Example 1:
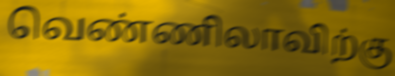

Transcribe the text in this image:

வெண்ணிலாவிற்கு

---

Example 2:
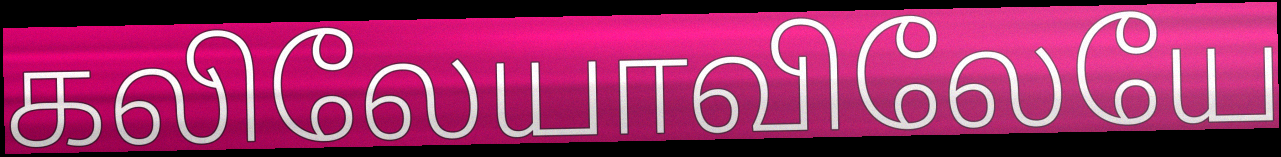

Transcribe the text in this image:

கலிலேயாவிலேயே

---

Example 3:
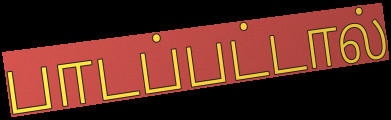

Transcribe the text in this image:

பாடப்பட்டால்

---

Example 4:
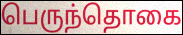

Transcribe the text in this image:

பெருந்தொகை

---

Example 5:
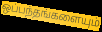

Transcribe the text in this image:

ஒப்பந்தங்களையும்